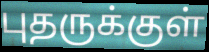
புதருக்குள்